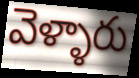
వెళ్ళారు